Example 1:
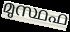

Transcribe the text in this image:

മുസ്ഥഫ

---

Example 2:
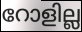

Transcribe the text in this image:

റോളില്ല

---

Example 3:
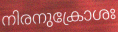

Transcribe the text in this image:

നിരനുക്രോശഃ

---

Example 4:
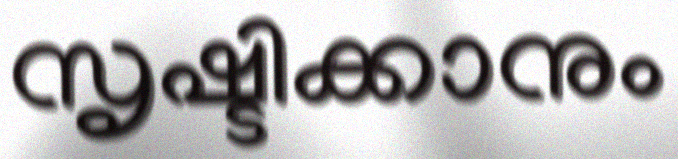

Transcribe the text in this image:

സൃഷ്ടിക്കാനും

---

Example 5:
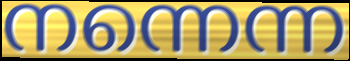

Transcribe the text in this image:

നന്നെന്ന